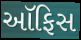
આૅફિસ